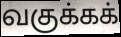
வகுக்கக்